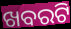
ଖବରଟି